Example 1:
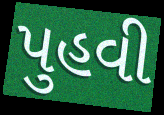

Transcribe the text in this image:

પુહવી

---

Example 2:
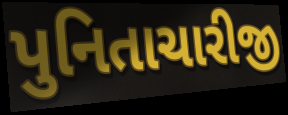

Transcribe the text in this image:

પુનિતાચારીજી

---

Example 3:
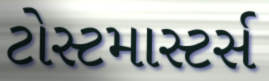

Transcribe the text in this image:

ટોસ્ટમાસ્ટર્સ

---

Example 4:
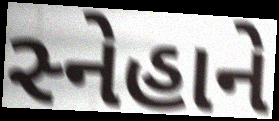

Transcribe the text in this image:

સ્નેહાને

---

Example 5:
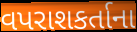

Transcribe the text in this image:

વપરાશકર્તાના